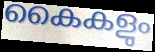
കൈകളും